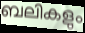
ബലികളും